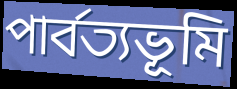
পার্বত্যভূমি